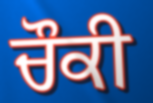
ਚੌਕੀ